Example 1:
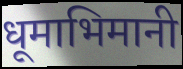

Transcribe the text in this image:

धूमाभिमानी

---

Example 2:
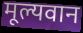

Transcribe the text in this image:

मूल्यवान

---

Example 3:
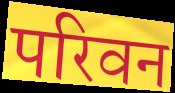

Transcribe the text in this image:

परिवन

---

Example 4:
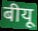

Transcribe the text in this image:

बीयू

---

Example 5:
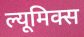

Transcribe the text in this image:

ल्यूमिक्स